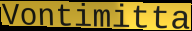
Vontimitta